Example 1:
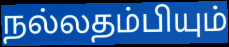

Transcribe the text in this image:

நல்லதம்பியும்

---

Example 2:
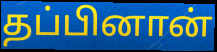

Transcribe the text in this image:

தப்பினான்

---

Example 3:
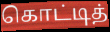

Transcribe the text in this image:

கொட்டித்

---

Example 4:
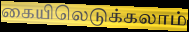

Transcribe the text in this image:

கையிலெடுக்கலாம்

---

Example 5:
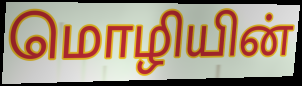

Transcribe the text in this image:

மொழியின்